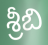
శ్రీబి